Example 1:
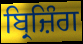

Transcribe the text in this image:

ਬ੍ਰਿਜ਼ਿੰਗ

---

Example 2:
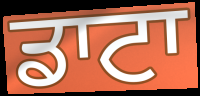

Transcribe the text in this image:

ਡਾਟਾ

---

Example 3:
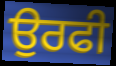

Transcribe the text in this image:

ਉਰਫੀ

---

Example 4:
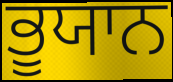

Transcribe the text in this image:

ਭੂਯਾਨ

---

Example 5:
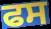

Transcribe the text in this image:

ਫਸ